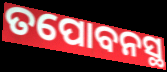
ତପୋବନସ୍ଥ